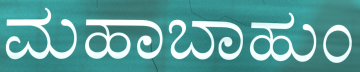
ಮಹಾಬಾಹುಂ